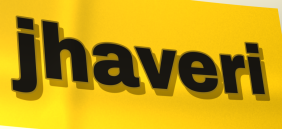
jhaveri